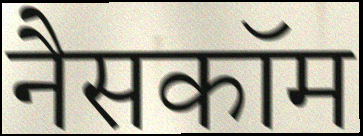
नैसकॉम